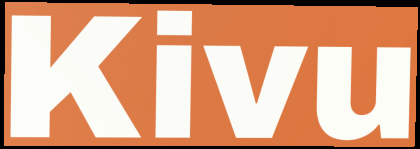
Kivu